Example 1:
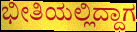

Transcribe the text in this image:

ಭೀತಿಯಲ್ಲಿದ್ದಾಗ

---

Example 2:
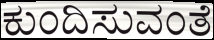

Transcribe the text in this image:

ಕುಂದಿಸುವಂತೆ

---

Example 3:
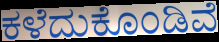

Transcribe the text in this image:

ಕಳೆದುಕೊಂಡಿವೆ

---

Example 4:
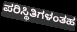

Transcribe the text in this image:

ಪರಿಸ್ಥಿತಿಗಳಂತಹ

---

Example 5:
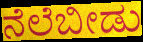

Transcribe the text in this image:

ನೆಲೆಬೀಡು